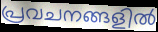
പ്രവചനങ്ങളിൽ